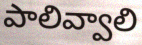
పాలివ్వాలి